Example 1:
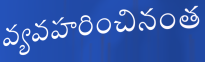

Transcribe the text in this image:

వ్యవహరించినంత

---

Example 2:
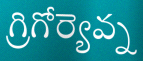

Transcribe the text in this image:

గ్రిగోర్యెవ్న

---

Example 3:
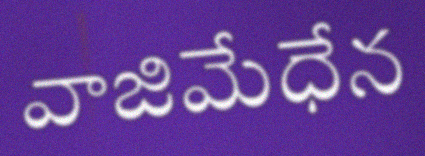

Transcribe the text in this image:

వాజిమేధేన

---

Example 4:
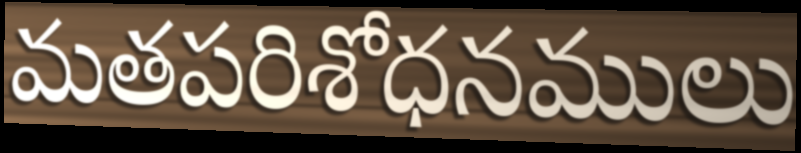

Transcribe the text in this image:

మతపరిశోధనములు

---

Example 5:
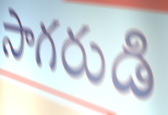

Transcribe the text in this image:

సాగరుడి